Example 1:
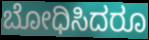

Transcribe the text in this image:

ಬೋಧಿಸಿದರೂ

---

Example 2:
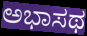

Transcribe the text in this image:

ಅಭಾಸಥ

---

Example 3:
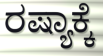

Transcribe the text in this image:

ರಷ್ಯಾಕ್ಕೆ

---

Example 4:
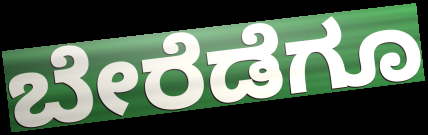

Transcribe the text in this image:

ಬೇರೆಡೆಗೂ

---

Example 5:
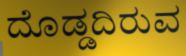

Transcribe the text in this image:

ದೊಡ್ಡದಿರುವ